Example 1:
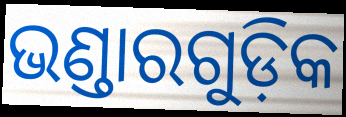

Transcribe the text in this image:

ଭଣ୍ଡାରଗୁଡ଼ିକ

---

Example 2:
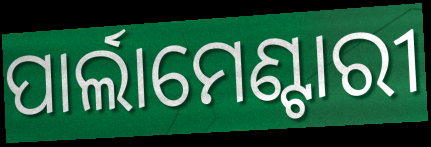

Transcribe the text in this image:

ପାର୍ଲାମେଣ୍ଟାରୀ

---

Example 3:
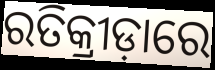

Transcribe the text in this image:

ରତିକ୍ରୀଡ଼ାରେ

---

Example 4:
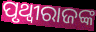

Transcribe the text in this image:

ପୃଥ୍ଵୀରାଜଙ୍କ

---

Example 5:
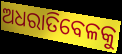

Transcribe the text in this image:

ଅଧରାତିବେଳକୁ